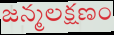
జన్మలక్షణం